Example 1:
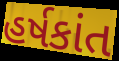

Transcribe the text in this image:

હર્ષકાંત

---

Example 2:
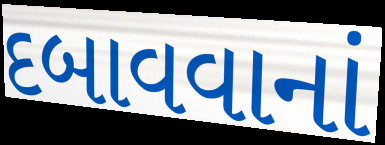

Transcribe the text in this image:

દબાવવાનાં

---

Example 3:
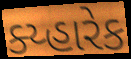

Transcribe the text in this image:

ક્ય્હારેક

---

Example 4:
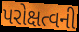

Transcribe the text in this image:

પરોક્ષત્વની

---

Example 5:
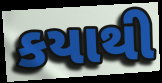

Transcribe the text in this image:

કયાથી